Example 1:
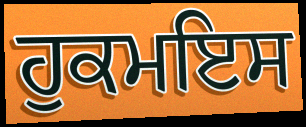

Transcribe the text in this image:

ਹੁਕਮਇਸ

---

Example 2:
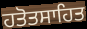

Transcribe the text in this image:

ਹਤੋਤਸਾਹਿਤ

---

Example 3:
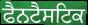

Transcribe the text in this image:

ਫੈਨਟੈਸਟਿਕ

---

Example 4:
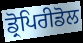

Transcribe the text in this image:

ਡ੍ਰੋਪਿਰੀਡੋਲ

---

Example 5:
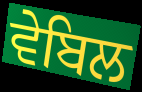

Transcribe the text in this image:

ਵੇਬਿਲ